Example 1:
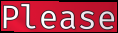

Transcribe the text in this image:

Please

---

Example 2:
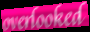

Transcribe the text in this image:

overlooked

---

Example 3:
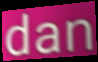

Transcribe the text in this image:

dan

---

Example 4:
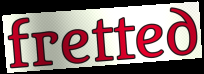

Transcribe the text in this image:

fretted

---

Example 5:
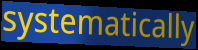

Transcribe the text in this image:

systematically